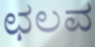
ಛಲವ